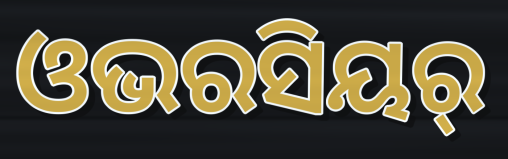
ଓଭରସିୟର୍